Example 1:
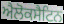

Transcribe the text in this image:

ਐਲੋਕਸੈਟਿਨ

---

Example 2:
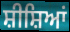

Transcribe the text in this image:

ਸ਼ੀਸ਼ਿਆਂ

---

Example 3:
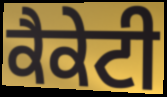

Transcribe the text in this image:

ਕੈਕੇਟੀ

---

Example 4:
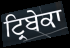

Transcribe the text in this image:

ਟ੍ਰਿਬੇਕਾ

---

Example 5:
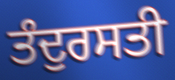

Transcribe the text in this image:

ਤੰਦੁਰਸਤੀ